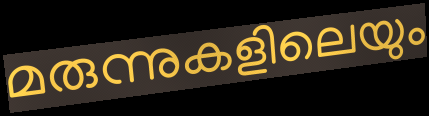
മരുന്നുകളിലെയും